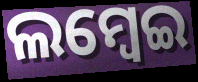
ଲମ୍ଵେଇ